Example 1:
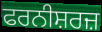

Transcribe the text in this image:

ਫਰਨੀਸ਼ਰਜ਼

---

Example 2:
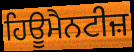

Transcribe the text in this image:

ਹਿਊਮੈਨਟੀਜ਼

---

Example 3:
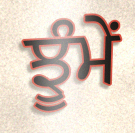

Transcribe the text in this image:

ਝੂੰਮੇਂ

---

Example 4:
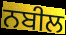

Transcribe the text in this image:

ਨਬੀਲ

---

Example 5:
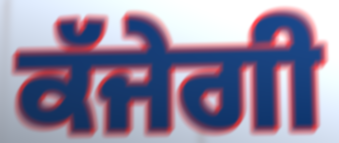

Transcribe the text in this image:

ਕੱਜੇਗੀ